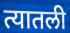
त्यातली